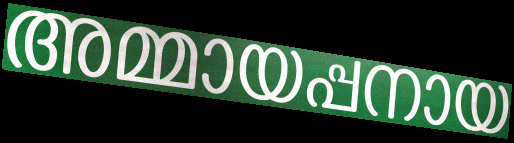
അമ്മായപ്പനായ